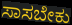
ಸಾಸಬೇಕು